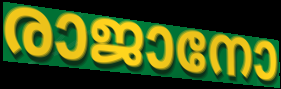
രാജാനോ